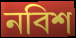
নবিশ